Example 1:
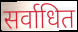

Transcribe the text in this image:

सर्वाधित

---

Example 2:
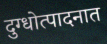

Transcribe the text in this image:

दुग्धोत्पादनात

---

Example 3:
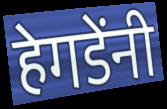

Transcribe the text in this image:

हेगडेंनी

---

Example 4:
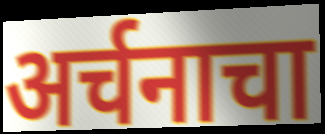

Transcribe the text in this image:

अर्चनाचा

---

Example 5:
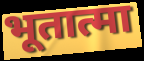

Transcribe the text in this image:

भूतात्मा